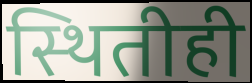
स्थितीही